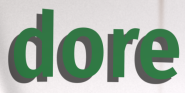
dore